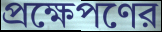
প্রক্ষেপণের